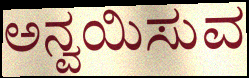
ಅನ್ವಯಿಸುವ